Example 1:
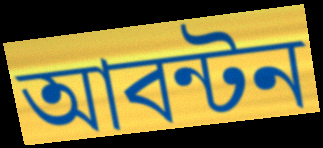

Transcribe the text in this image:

আবন্টন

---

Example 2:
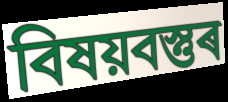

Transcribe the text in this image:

বিষয়বস্তুৰ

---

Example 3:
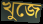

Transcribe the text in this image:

খুজে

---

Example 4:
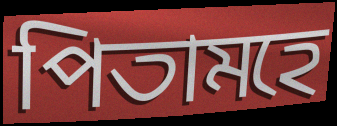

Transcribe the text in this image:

পিতামহে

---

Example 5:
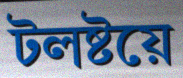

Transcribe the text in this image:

টলষ্টয়ে